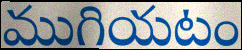
ముగియటం